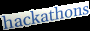
hackathons